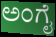
ಅಂಗೈ